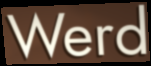
Werd